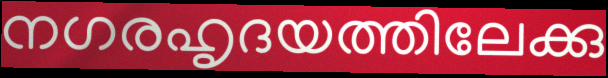
നഗരഹൃദയത്തിലേക്കു